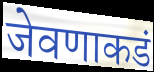
जेवणाकडं